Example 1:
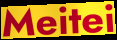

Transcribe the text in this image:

Meitei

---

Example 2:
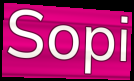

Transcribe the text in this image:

Sopi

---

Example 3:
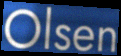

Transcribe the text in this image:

Olsen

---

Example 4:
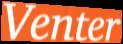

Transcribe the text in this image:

Venter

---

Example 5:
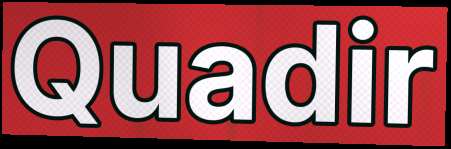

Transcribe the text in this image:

Quadir